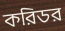
করিডর